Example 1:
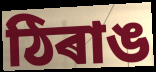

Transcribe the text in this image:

ঠিৰাঙ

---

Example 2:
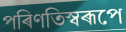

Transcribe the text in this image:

পৰিণতিস্বৰূপে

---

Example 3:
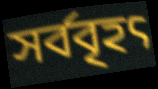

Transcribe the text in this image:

সৰ্ববৃহৎ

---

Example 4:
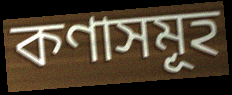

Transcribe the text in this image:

কণাসমূহ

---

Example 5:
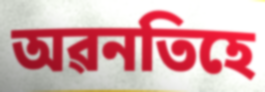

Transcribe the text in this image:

অৱনতিহে